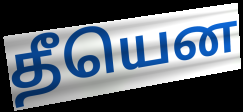
தீயென